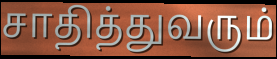
சாதித்துவரும்